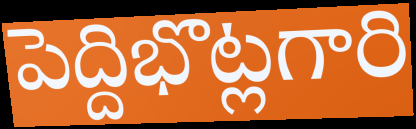
పెద్దిభొట్లగారి